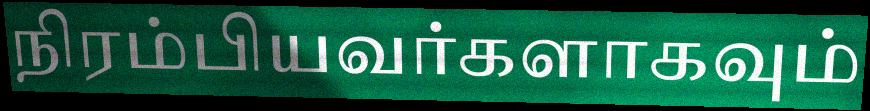
நிரம்பியவர்களாகவும்